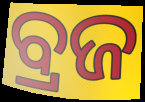
ବ୍ରଜ